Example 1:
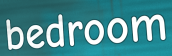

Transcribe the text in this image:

bedroom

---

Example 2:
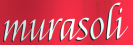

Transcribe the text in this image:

murasoli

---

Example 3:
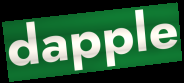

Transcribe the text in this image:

dapple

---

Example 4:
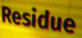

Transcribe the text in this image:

Residue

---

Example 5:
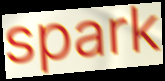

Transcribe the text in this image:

spark